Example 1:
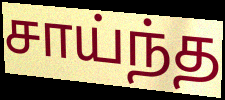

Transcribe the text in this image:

சாய்ந்த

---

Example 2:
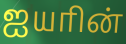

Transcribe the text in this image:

ஐயரின்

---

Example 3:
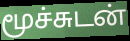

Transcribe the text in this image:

மூச்சுடன்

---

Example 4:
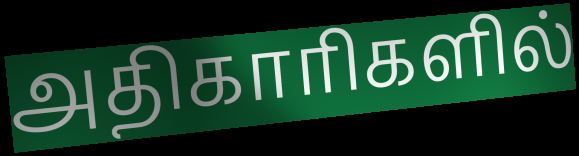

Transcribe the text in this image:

அதிகாரிகளில்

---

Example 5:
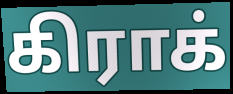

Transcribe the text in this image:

கிராக்